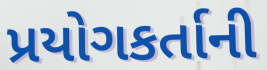
પ્રયોગકર્તાની